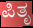
ಪಿತೃ